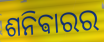
ଶନିଵାରର